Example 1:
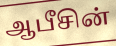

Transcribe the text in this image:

ஆபீசின்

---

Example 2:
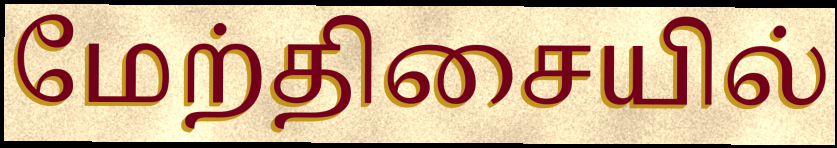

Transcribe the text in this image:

மேற்திசையில்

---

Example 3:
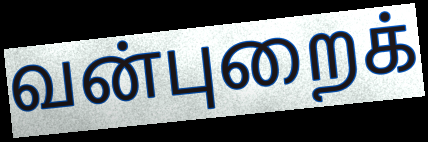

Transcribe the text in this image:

வன்புறைக்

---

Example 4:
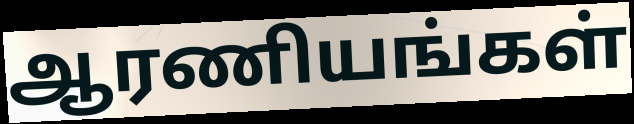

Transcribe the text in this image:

ஆரணியங்கள்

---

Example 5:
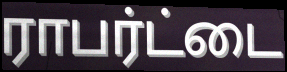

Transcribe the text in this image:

ராபர்ட்டை